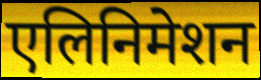
एलिनिमेशन